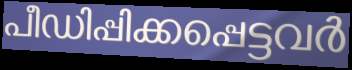
പീഡിപ്പിക്കപ്പെട്ടവർ